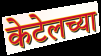
केटेलच्या